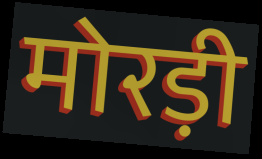
मोरड़ी